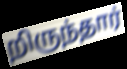
றிருந்தார்